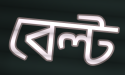
বেল্ট